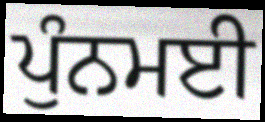
ਪੁੰਨਮਈ